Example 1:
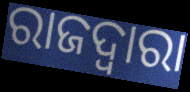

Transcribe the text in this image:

ରାଜଦ୍ୱାରା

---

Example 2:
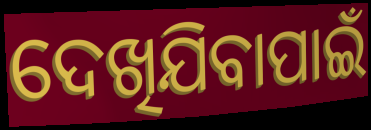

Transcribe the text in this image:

ଦେଖିଯିବାପାଇଁ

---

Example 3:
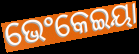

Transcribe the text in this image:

ଭେଂକେଇୟା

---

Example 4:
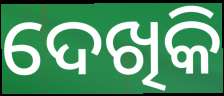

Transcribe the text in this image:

ଦେଖିକି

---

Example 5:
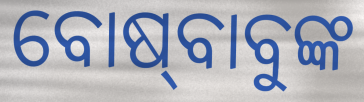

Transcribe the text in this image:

ବୋଷ୍‍ବାବୁଙ୍କ